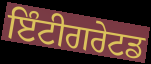
ਇੰਟੀਗਰੇਟਡ